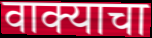
वाक्याचा